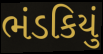
ભંડકિયું